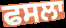
ਫਸਲਾ